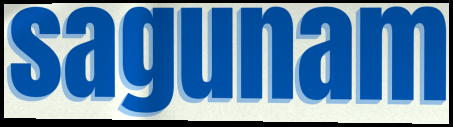
sagunam